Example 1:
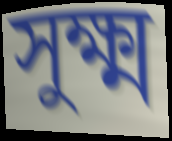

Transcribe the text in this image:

সুক্ষ্ম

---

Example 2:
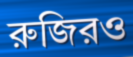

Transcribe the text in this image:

রুজিরও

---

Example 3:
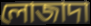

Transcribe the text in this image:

লোজাদা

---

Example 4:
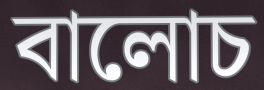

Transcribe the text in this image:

বালোচ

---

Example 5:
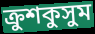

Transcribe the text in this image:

ক্রুশকুসুম